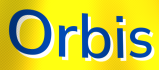
Orbis